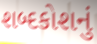
શબ્દકોશનું